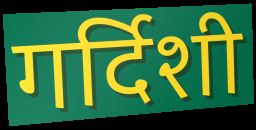
गर्दिशी